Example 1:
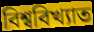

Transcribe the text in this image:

বিশ্ববিখ্যাত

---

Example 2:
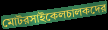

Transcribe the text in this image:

মোটরসাইকেলচালকদের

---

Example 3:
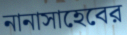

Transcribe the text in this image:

নানাসাহেবের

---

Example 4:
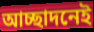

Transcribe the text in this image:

আচ্ছাদনেই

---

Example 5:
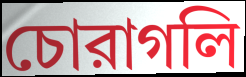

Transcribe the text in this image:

চোরাগলি